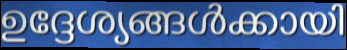
ഉദ്ദേശ്യങ്ങൾക്കായി